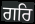
ਗਰਿ